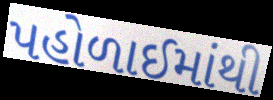
પહોળાઈમાંથી